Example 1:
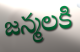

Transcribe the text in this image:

జన్మలకి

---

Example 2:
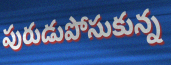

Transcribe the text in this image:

పురుడుపోసుకున్న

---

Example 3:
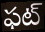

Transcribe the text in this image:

ఫట్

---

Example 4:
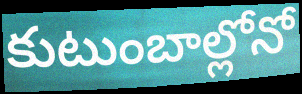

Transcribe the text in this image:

కుటుంబాల్లోనో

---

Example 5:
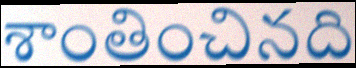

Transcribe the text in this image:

శాంతించినది